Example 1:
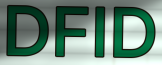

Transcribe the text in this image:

DFID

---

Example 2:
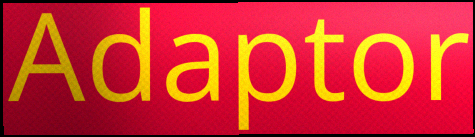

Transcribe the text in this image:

Adaptor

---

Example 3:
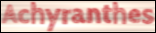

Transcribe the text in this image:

Achyranthes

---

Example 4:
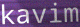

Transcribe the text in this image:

kavim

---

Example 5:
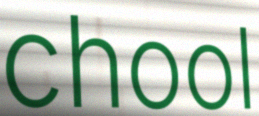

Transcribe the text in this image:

chool